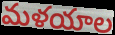
మళయాల